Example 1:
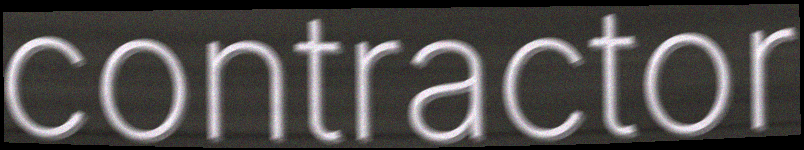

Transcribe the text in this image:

contractor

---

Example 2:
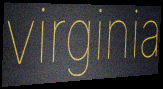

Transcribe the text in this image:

virginia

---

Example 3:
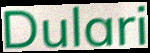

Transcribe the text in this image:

Dulari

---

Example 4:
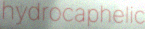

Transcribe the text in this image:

hydrocaphelic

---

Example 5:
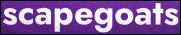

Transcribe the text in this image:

scapegoats